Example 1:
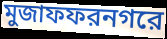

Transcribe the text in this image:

মুজাফফরনগরে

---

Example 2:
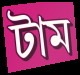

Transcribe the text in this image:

টাম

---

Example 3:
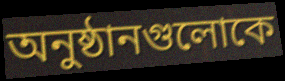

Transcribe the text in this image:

অনুষ্ঠানগুলোকে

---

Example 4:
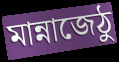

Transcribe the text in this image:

মান্নাজেঠু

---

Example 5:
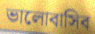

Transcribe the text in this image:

ভালোবাসিব